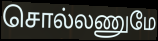
சொல்லணுமே